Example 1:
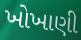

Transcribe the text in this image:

ખોખાણી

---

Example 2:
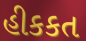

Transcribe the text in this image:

હીકકત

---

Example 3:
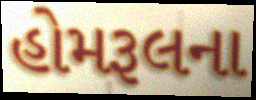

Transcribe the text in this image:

હોમરૂલના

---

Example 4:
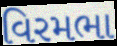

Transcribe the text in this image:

વિરમભા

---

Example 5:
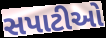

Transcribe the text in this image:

સપાટીઓ